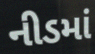
નીડમાં